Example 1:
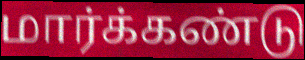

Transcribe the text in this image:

மார்க்கண்டு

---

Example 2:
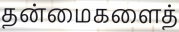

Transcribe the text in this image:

தன்மைகளைத்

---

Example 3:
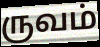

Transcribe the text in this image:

ருவம்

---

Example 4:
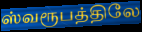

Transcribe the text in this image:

ஸ்வரூபத்திலே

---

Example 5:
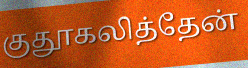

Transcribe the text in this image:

குதூகலித்தேன்